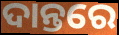
ଦାନ୍ତରେ